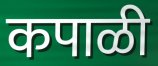
कपाळी